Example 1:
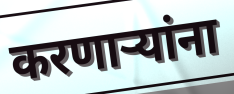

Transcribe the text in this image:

करणार्‍यांना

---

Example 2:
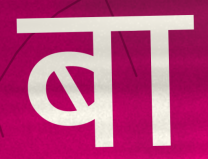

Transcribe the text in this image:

बा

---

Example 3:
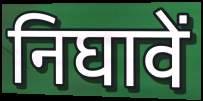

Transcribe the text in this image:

निघावें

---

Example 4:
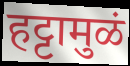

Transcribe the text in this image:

हट्टामुळं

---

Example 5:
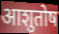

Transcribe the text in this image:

आशुतोष